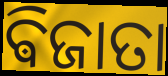
ଵିଜାତା